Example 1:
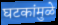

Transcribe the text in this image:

घटकांमुळे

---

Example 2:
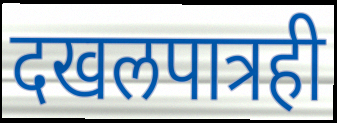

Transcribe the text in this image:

दखलपात्रही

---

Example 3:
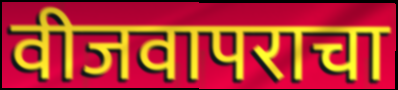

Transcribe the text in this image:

वीजवापराचा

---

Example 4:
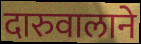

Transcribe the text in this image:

दारुवालाने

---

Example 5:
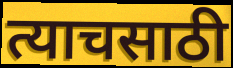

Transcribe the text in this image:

त्याचसाठी